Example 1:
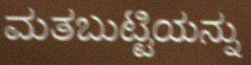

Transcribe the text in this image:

ಮತಬುಟ್ಟಿಯನ್ನು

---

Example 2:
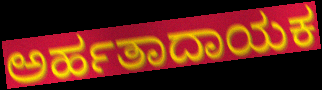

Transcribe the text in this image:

ಅರ್ಹತಾದಾಯಕ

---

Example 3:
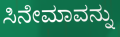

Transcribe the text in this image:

ಸಿನೇಮಾವನ್ನು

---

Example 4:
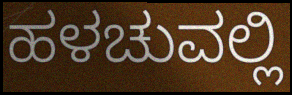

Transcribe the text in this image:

ಹಳಚುವಲ್ಲಿ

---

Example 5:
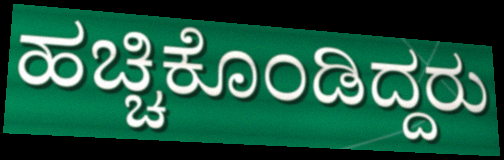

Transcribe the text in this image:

ಹಚ್ಚಿಕೊಂಡಿದ್ದರು